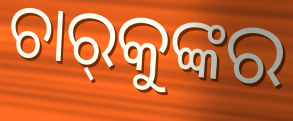
ଚାର୍‌କୁଙ୍କର